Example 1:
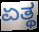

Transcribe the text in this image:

ಏತ್ಥ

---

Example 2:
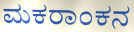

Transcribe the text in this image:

ಮಕರಾಂಕನ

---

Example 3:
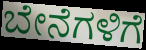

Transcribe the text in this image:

ಬೇನೆಗಳಿಗೆ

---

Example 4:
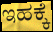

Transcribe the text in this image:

ಇಹಕ್ಕೆ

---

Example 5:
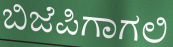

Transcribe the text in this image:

ಬಿಜೆಪಿಗಾಗಲಿ